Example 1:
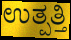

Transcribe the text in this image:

ಉತ್ಪತ್ತಿ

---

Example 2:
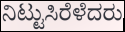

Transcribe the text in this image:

ನಿಟ್ಟುಸಿರೆಳೆದರು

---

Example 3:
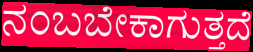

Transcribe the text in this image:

ನಂಬಬೇಕಾಗುತ್ತದೆ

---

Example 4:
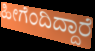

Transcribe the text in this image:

ಹೀಗೆಂದಿದ್ದಾರೆ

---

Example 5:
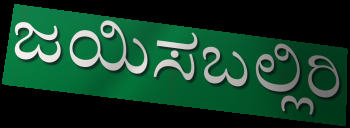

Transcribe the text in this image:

ಜಯಿಸಬಲ್ಲಿರಿ